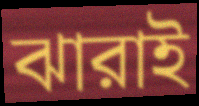
ঝারাই